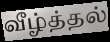
வீழ்த்தல்